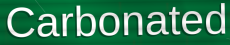
Carbonated